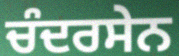
ਚੰਦਰਸੇਨ